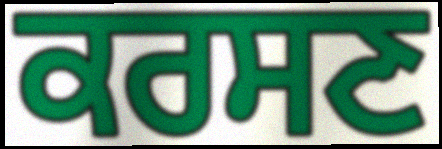
ਕਰਸਣ